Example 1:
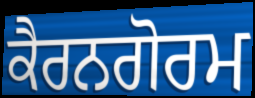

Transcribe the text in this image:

ਕੈਰਨਗੋਰਮ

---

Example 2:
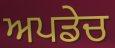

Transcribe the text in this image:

ਅਪਡੇਚ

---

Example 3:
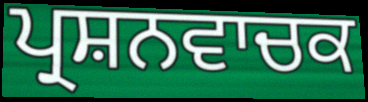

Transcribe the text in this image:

ਪ੍ਰਸ਼ਨਵਾਚਕ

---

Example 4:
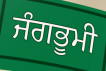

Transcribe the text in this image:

ਜੰਗਭੂਮੀ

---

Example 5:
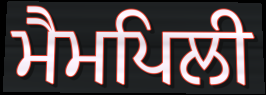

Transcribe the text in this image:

ਮੈਮਪਿਲੀ